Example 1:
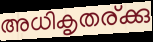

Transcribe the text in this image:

അധികൃതര്ക്കു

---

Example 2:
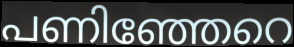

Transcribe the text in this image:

പണിഞ്ഞേറെ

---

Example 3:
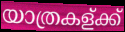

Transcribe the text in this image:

യാത്രകള്ക്ക്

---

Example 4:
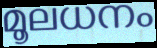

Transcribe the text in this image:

മൂലധനം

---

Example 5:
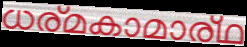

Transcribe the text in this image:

ധര്മകാമാര്ഥ